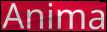
Anima